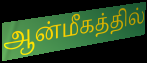
ஆன்மீகத்தில்